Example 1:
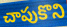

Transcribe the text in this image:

చాపుకొని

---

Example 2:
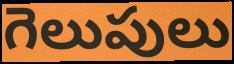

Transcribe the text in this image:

గెలుపులు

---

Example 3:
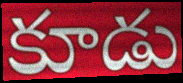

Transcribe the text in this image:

కూడు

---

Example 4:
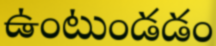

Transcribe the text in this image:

ఉంటుండడం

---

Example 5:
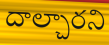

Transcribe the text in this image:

దాల్చారని